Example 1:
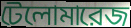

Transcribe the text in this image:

টেলোমারেজ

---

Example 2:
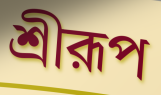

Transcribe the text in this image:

শ্রীরূপ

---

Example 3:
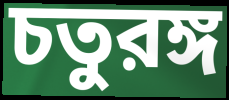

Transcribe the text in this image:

চতুরঙ্গ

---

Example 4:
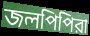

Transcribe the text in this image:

জলপিপিরা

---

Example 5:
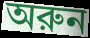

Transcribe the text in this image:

অরুন